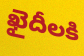
ఖైదీలకి